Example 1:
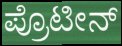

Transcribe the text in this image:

ಪ್ರೊಟೀನ್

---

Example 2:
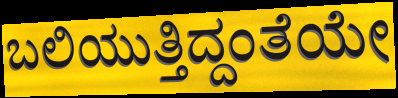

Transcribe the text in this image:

ಬಲಿಯುತ್ತಿದ್ದಂತೆಯೇ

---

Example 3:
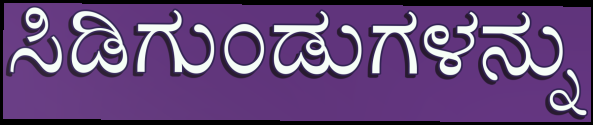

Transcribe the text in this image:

ಸಿಡಿಗುಂಡುಗಳನ್ನು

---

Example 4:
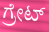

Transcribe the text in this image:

ಗ್ರೇಟ್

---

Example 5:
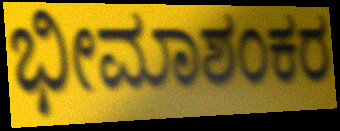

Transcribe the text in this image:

ಭೀಮಾಶಂಕರ